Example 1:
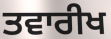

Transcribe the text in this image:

ਤਵਾਰੀਖ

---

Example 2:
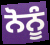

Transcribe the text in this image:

ਨੋਨੂੰ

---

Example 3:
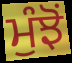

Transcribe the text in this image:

ਮੁੰਝੋਂ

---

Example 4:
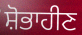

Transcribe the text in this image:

ਸ਼ੋਭਾਹੀਣ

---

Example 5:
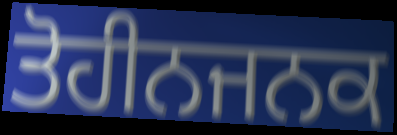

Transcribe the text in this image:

ਤੋਹੀਨਜਨਕ